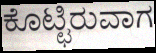
ಕೊಟ್ಟಿರುವಾಗ